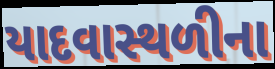
યાદવાસ્થળીના